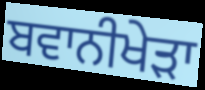
ਬਵਾਨੀਖੇੜਾ